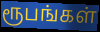
ரூபங்கள்